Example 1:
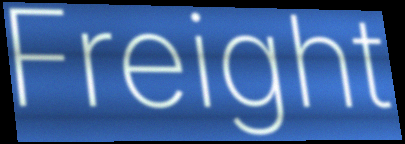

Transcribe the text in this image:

Freight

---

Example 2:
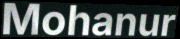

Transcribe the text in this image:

Mohanur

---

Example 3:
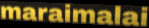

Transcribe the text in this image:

maraimalai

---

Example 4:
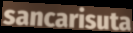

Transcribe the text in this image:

sancarisuta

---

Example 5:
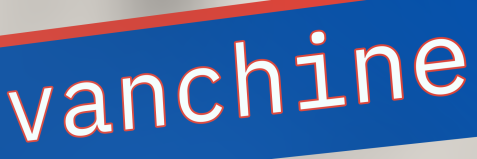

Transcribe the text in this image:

vanchine